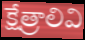
క్షేత్రాలివి